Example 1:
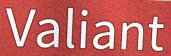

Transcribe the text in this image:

Valiant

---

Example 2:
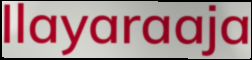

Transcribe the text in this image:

Ilayaraaja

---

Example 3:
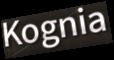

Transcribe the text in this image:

Kognia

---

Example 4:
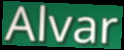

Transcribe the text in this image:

Alvar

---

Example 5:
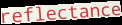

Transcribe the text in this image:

reflectance